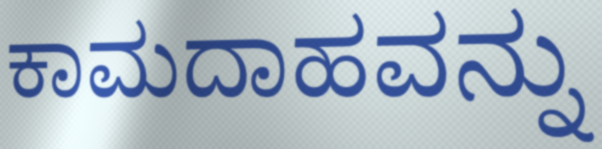
ಕಾಮದಾಹವನ್ನು